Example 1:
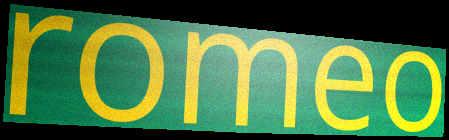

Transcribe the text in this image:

romeo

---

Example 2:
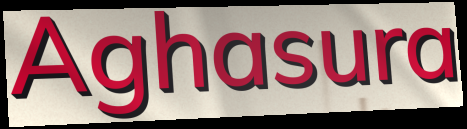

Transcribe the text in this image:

Aghasura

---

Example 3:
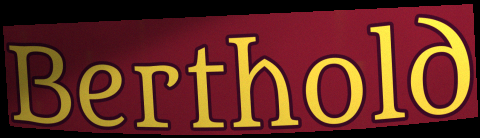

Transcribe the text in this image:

Berthold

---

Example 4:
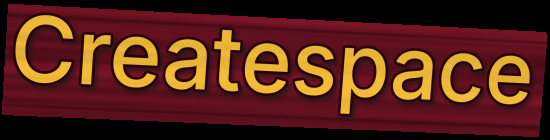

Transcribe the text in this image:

Createspace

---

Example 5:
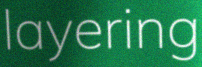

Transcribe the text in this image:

layering